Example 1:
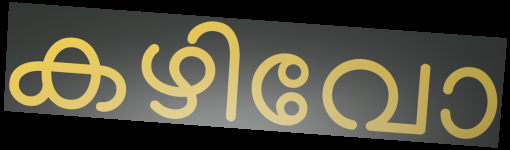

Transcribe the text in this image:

കഴിവോ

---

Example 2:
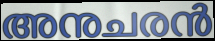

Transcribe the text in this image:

അനുചരൻ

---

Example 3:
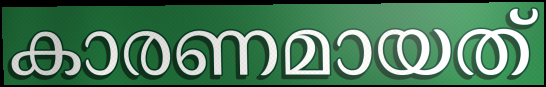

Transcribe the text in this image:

കാരണമായത്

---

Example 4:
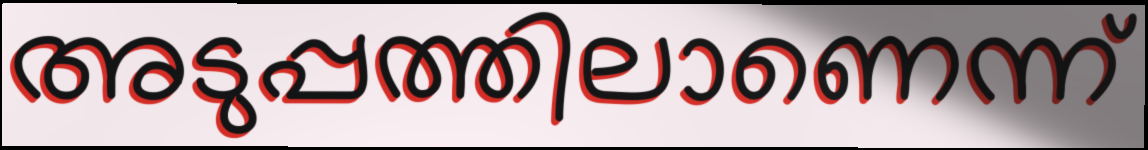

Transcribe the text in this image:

അടുപ്പത്തിലാണെന്ന്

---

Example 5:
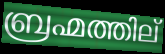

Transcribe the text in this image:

ബ്രഹ്മത്തില്